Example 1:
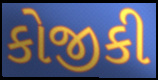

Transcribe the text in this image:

કોજીકી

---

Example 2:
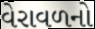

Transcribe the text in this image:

વેરાવળનો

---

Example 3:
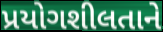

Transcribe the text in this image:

પ્રયોગશીલતાને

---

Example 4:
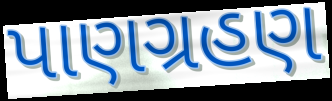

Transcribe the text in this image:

પાણગ્રહણ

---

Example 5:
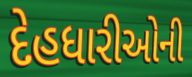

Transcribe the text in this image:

દેહધારીઓની